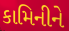
કામિનીને